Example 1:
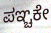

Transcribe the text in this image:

ಪಞ್ಚಕೇ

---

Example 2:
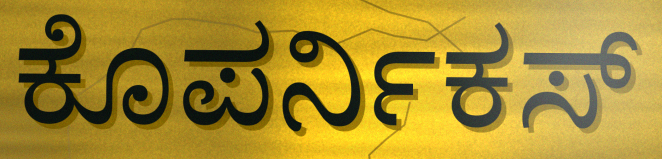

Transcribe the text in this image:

ಕೊಪರ್ನಿಕಸ್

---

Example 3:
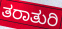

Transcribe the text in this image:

ತರಾತುರಿ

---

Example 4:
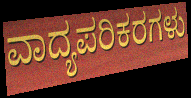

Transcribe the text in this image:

ವಾದ್ಯಪರಿಕರಗಳು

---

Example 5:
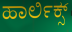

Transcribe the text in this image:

ಹಾರ್ಲಿಕ್ಸ್